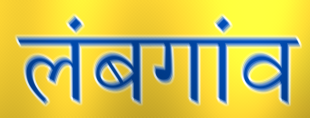
लंबगांव